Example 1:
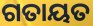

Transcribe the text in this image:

ଗତାୟତ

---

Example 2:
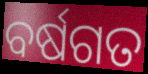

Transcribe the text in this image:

ବର୍ଷଗତ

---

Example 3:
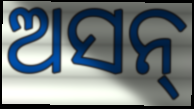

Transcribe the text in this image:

ଅସନ୍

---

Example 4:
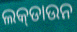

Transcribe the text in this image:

ଲକ୍‌ଡାଉନ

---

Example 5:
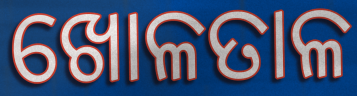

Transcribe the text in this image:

ଖୋଳତାଳ